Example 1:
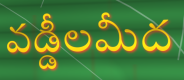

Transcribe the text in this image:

వడ్డీలమీద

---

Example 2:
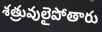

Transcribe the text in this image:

శత్రువులైపోతారు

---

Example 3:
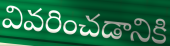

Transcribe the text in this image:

వివరించడానికి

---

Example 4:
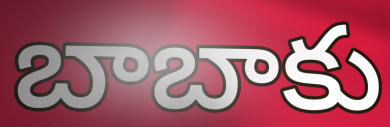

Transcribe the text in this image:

బాబాకు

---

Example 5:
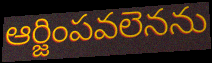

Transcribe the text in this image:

ఆర్జింపవలెనను